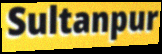
Sultanpur